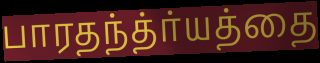
பாரதந்த்ர்யத்தை